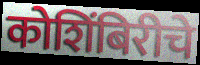
कोशिंबिरीचे